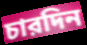
চারদিন